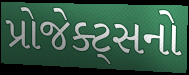
પ્રોજેક્ટ્સનો